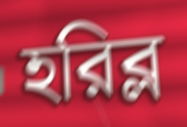
হরিব্ল